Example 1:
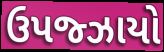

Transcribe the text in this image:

ઉપજ્ઝાયો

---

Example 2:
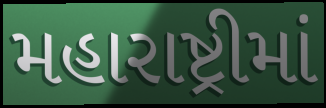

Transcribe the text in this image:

મહારાષ્ટ્રીમાં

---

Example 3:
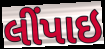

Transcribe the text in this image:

લીંપાઇ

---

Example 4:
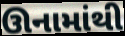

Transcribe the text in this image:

ઊનામાંથી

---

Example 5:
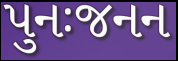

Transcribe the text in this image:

પુનઃજનન